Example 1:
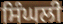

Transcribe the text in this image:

ਸਿੰਘਲੀ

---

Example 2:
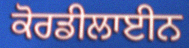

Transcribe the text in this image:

ਕੋਰਡੀਲਾਈਨ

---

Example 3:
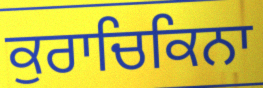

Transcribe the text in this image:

ਕੁਰਾਚਿਕਿਨਾ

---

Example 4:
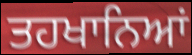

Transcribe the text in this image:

ਤਹਖਾਨਿਆਂ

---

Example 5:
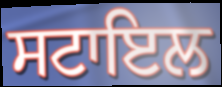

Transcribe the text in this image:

ਸਟਾਇਲ